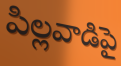
పిల్లవాడిపై